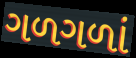
ગળગળાં